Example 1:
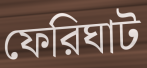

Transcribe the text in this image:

ফেরিঘাট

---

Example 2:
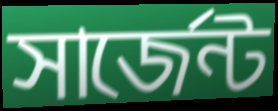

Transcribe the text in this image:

সার্জেন্ট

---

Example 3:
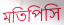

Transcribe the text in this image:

মতিপিসি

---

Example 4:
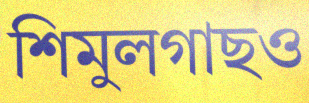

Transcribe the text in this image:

শিমুলগাছও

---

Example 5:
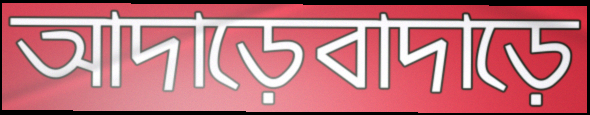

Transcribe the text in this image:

আদাড়েবাদাড়ে